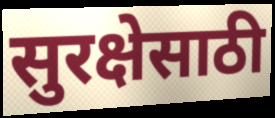
सुरक्षेसाठी